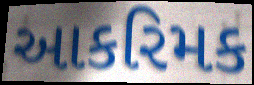
આકરિમક